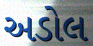
અડોલ